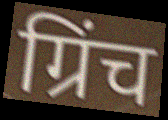
ग्रिंच